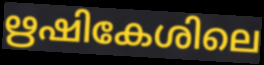
ഋഷികേശിലെ